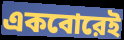
একবোরেই